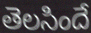
తెలసిందే